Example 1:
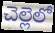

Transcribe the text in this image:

చెల్లెలో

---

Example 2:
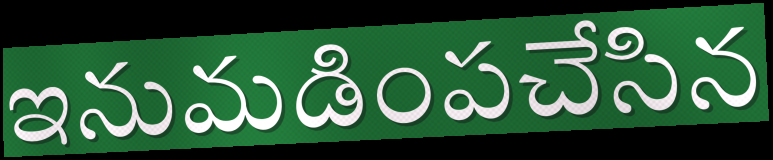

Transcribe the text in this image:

ఇనుమడింపచేసిన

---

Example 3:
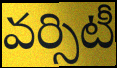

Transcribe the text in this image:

వర్సిటీ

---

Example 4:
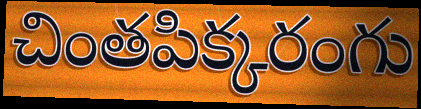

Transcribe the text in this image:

చింతపిక్కరంగు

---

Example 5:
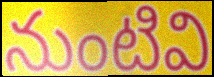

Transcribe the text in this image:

నుంటివి